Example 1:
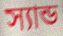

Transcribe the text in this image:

স্যান্ড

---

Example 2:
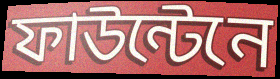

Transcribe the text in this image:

ফাউন্টেনে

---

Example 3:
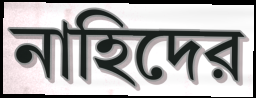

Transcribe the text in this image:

নাহিদের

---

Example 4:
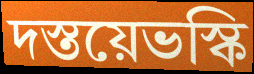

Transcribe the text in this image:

দস্তয়েভস্কি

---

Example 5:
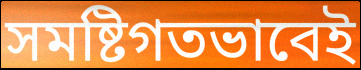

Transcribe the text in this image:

সমষ্টিগতভাবেই